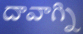
దావాగ్ని